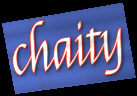
chaity